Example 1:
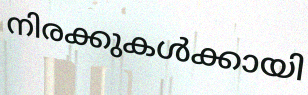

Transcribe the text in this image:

നിരക്കുകൾക്കായി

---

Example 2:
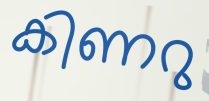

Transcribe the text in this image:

കിണറു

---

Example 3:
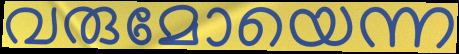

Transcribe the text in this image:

വരുമോയെന്ന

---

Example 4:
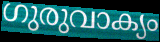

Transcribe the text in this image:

ഗുരുവാക്യം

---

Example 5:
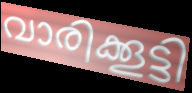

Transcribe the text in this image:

വാരിക്കൂട്ടി